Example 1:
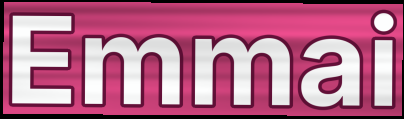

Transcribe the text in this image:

Emmai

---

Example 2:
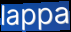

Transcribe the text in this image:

lappa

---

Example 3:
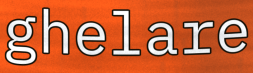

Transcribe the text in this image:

ghelare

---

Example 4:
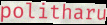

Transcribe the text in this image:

politharu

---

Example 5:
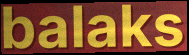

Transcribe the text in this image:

balaks